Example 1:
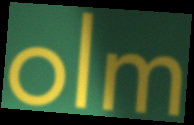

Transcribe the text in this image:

olm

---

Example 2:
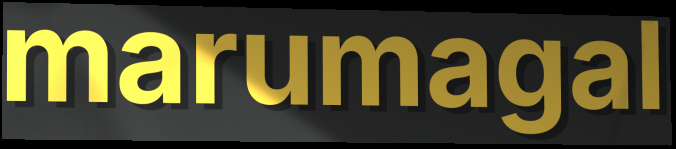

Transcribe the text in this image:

marumagal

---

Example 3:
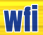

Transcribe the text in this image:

wfi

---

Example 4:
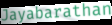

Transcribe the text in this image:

Jayabarathan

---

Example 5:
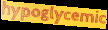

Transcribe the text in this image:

hypoglycemic